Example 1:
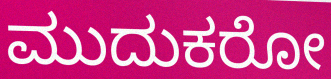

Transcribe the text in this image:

ಮುದುಕರೋ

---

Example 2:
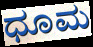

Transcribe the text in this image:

ಧೂಮ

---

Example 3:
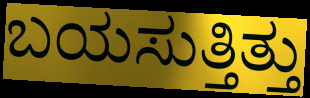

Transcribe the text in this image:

ಬಯಸುತ್ತಿತ್ತು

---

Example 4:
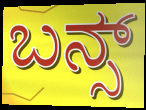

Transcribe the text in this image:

ಬನ್ಸ್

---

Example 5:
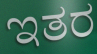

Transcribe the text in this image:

ಇತರ